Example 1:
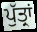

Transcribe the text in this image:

ਪੁੱਤ੍ਰਾਂ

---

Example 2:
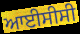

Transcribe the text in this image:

ਆਈਸੀਸੀ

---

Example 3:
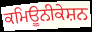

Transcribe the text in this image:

ਕਮਿਊਨੀਕੇਸ਼ਨ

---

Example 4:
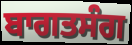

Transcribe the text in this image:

ਬਾਗਤਸੰਗ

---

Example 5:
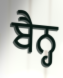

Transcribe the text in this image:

ਬੈਨ੍ਹ